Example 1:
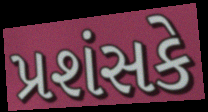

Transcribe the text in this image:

પ્રશંસકે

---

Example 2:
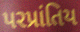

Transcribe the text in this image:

પરપ્રાંતિય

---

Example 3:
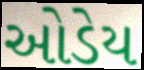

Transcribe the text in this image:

ઓડેય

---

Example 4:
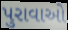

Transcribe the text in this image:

પુરાવાઓ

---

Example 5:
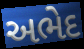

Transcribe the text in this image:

અભેદ